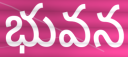
భువన